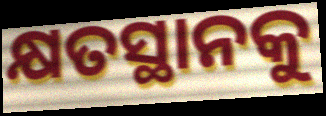
କ୍ଷତସ୍ଥାନକୁ